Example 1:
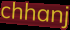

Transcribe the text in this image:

chhanj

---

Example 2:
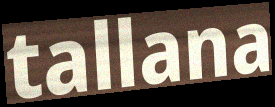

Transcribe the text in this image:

tallana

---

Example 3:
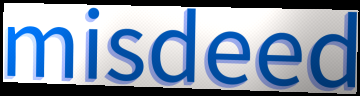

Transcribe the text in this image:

misdeed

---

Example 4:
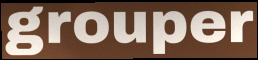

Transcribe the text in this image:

grouper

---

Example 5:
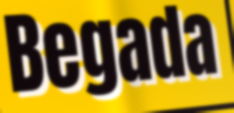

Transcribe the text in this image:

Begada